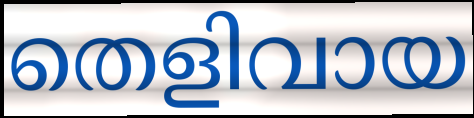
തെളിവായ